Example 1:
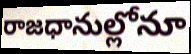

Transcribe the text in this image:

రాజధానుల్లోనూ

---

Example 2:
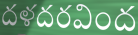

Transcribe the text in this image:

దళదరవింద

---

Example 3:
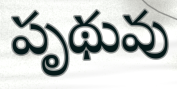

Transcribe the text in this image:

పృథువు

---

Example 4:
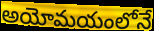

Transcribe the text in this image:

అయోమయంలోనే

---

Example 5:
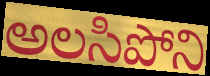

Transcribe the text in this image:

అలసిపోని